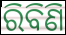
ରିବିଣି